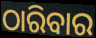
ଠାରିବାର